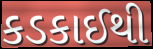
કડકાઈથી